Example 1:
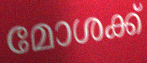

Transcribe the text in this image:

മോശക്ക്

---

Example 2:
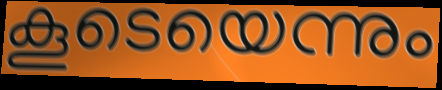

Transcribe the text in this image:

കൂടെയെന്നും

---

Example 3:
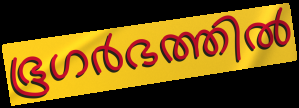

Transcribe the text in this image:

ഭൂഗർഭത്തിൽ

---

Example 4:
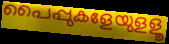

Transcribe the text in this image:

പൈപ്പുകളേയുളളൂ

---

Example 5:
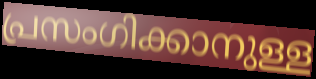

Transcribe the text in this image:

പ്രസംഗിക്കാനുള്ള